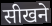
सीखने